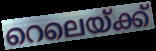
റെലെയ്ക്ക്